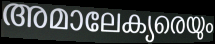
അമാലേക്യരെയും